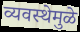
व्यवस्थेमुळे